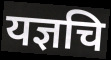
यज्ञचि